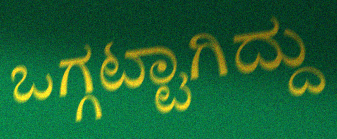
ಒಗ್ಗಟ್ಟಾಗಿದ್ದು